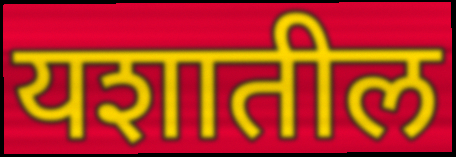
यशातील